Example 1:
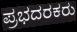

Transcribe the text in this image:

ಪ್ರಭದರಕರು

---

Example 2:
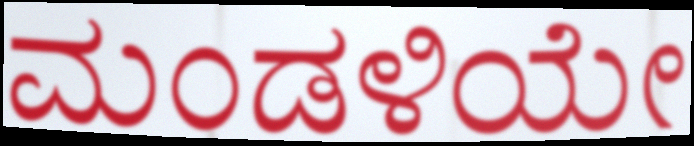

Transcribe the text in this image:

ಮಂಡಳಿಯೇ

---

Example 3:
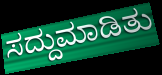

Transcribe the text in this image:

ಸದ್ದುಮಾಡಿತು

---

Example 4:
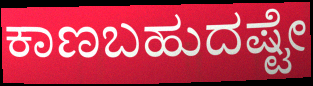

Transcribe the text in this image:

ಕಾಣಬಹುದಷ್ಟೇ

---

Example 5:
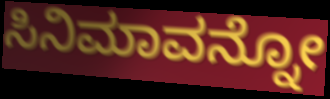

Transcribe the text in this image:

ಸಿನಿಮಾವನ್ನೋ